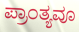
ಪ್ರಾಂತ್ಯವೂ